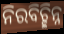
ନିରବିଚ୍ଛିନ୍ନ